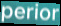
perior